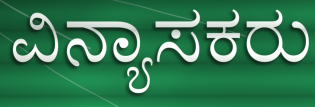
ವಿನ್ಯಾಸಕರು